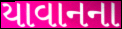
યાવાનના